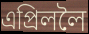
এপ্ৰিললৈ